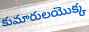
కుమారులయొక్క